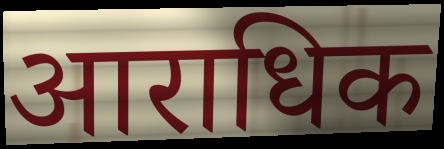
आराधिक